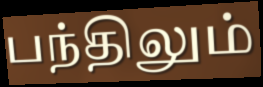
பந்திலும்